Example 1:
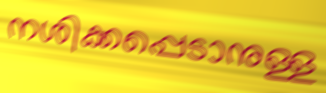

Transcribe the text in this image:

നശിക്കപ്പെടാനുള്ള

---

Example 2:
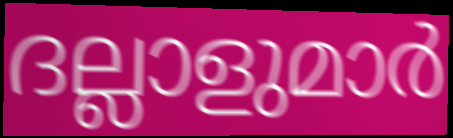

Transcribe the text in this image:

ദല്ലാളുമാർ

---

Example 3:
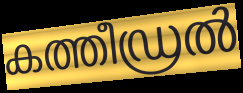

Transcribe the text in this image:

കത്തീഡ്രൽ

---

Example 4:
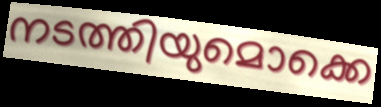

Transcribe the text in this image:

നടത്തിയുമൊക്കെ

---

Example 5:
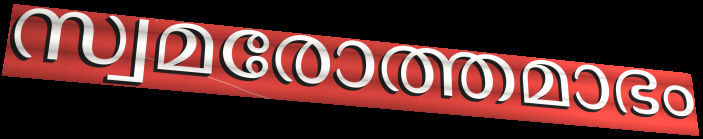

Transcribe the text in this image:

സ്വമരോത്തമാഭം